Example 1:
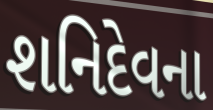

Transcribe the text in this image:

શનિદેવના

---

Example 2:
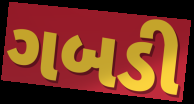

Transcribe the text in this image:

ગબડી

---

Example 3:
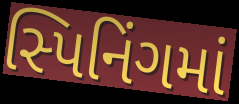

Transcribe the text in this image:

સ્પિનિંગમાં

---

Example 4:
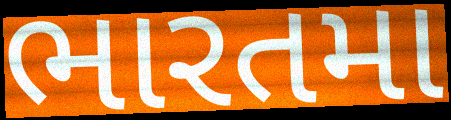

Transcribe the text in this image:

ભારતમા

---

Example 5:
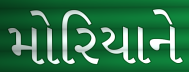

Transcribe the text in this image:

મોરિયાને